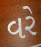
વરે